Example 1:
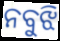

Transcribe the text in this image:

ନବୁଝି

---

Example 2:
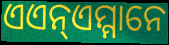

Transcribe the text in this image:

ଏଏନ୍ଏମ୍ମାନେ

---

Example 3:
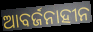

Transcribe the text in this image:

ଆବର୍ଜନାହୀନ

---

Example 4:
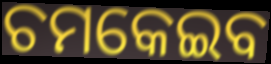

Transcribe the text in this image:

ଚମକେଇବ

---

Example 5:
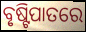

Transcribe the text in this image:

ବୃଷ୍ଟିପାତରେ